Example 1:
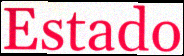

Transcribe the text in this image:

Estado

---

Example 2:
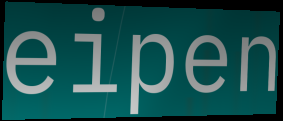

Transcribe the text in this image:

eipen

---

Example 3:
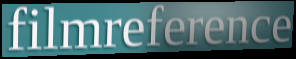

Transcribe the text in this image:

filmreference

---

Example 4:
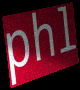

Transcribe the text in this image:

phl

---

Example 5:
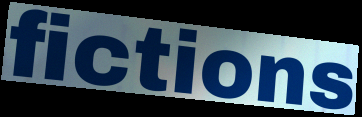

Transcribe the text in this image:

fictions